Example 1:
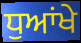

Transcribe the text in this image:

ਧੁਆਂਖੇ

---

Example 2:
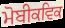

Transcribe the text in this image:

ਮੋਬੀਕਵਿਕ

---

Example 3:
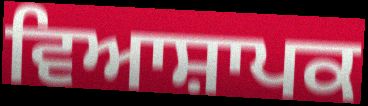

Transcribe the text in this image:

ਵਿਆਸ਼ਾਪਕ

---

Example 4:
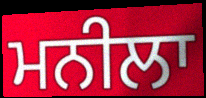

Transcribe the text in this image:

ਮਨੀਲਾ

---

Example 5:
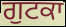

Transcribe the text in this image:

ਗੁਟਕਾ